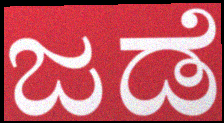
ಜಡೆ